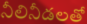
నీలినీడలతో